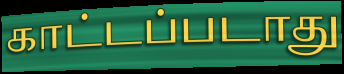
காட்டப்படாது